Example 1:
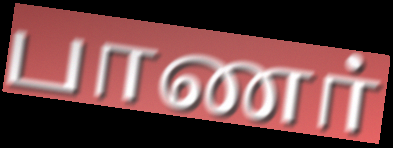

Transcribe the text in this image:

பாணர்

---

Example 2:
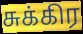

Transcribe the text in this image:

சுக்கிர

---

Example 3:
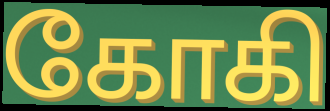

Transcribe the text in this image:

கோகி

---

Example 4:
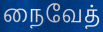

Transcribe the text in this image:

நைவேத்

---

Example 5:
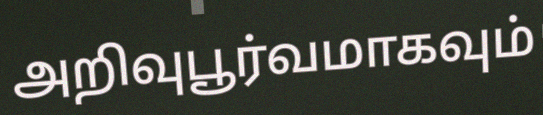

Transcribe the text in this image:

அறிவுபூர்வமாகவும்